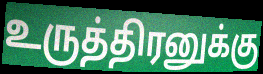
உருத்திரனுக்கு